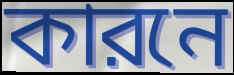
কারনে